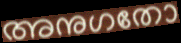
അനുഗതോ